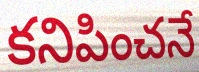
కనిపించనే